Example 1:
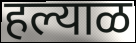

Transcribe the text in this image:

हल्याळ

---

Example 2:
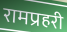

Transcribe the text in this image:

रामप्रहरी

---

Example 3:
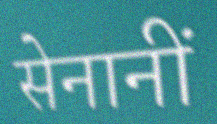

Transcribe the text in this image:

सेनानीं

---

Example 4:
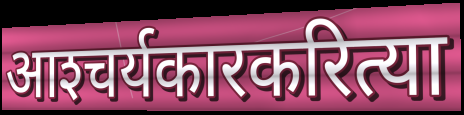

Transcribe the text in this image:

आश्‍चर्यकारकरित्या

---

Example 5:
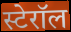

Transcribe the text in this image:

स्टेरॉल